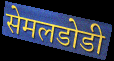
सेमलडोडी